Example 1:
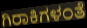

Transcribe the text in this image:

ಗಿರಾಕಿಗಳಂತೆ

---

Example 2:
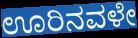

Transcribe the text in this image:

ಊರಿನವಳೇ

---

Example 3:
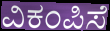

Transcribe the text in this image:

ವಿಕಂಪಿಸೆ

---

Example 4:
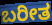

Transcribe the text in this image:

ಬರೀತ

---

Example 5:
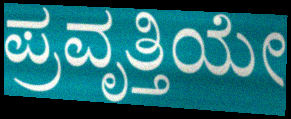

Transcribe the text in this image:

ಪ್ರವೃತ್ತಿಯೇ